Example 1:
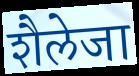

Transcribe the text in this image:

शैलेजा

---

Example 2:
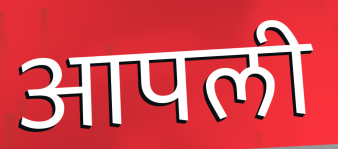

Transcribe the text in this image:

आपली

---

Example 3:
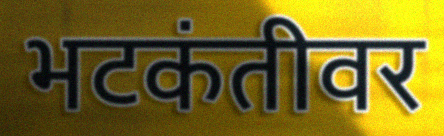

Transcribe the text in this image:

भटकंतीवर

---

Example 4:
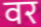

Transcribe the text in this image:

वर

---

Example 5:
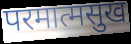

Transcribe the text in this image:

परमात्मसुख